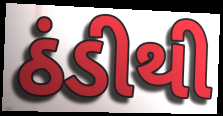
ઠંડીથી